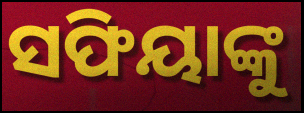
ସଫିୟାଙ୍କୁ